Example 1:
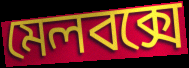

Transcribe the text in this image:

মেলবক্সে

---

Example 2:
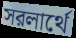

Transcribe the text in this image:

সরলার্থে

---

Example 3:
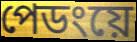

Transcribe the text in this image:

পেডংয়ে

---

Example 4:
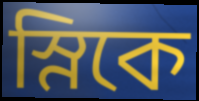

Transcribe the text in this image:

স্নিকে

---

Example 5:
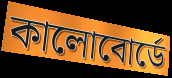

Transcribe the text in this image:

কালোবোর্ডে